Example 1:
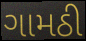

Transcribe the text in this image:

ગામઠી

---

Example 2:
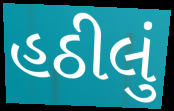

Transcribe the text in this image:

હઠીલું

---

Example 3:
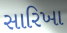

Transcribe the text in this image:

સારિખા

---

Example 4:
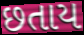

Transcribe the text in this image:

છતાય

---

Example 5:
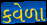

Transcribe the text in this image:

કવેળા